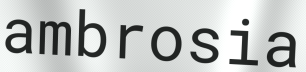
ambrosia